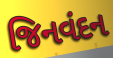
જિનવંદન